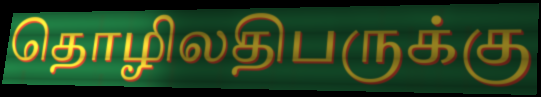
தொழிலதிபருக்கு